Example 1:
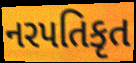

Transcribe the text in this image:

નરપતિકૃત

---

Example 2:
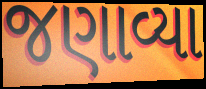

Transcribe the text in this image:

જણાવ્યા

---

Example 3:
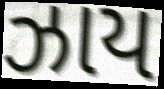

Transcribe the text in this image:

ઝાય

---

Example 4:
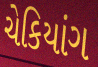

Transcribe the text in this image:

ચેકિયાંગ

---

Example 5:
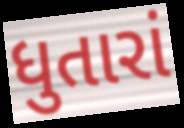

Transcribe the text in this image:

ધુતારાં